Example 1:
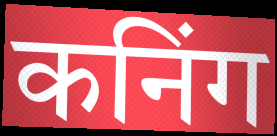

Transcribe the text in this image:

कनिंग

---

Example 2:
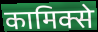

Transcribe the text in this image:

कामिक्से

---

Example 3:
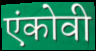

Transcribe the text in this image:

एंकोवी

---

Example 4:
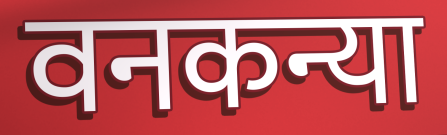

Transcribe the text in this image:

वनकन्या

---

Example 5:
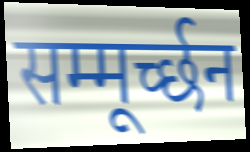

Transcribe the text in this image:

सम्मूर्च्छन